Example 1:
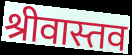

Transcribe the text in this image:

श्रीवास्‍तव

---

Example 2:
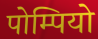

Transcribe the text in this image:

पोम्पियो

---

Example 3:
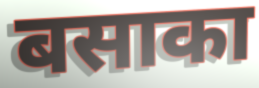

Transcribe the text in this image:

बसाका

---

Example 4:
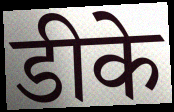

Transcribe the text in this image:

डीके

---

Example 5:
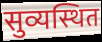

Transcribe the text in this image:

सुव्यस्थित